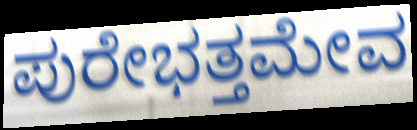
ಪುರೇಭತ್ತಮೇವ